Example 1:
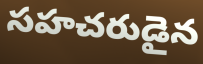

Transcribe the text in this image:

సహచరుడైన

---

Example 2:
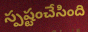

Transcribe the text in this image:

స్పష్టంచేసింది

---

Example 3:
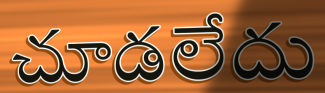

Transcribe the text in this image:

చూడలేదు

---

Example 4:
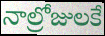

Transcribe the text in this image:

నాల్రోజులకే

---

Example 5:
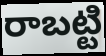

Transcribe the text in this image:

రాబట్టి